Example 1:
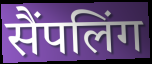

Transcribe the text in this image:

सैंपलिंग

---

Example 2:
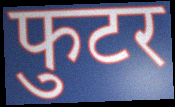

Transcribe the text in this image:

फुटर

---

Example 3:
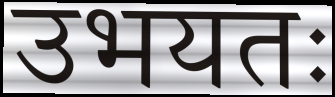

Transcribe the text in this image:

उभयतः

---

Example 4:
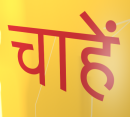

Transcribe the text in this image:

चाहें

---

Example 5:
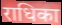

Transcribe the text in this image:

राधिका